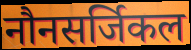
नौनसर्जिकल